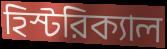
হিস্টরিক্যাল